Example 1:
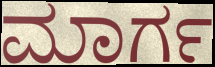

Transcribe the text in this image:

ಮಾರ್ಗ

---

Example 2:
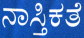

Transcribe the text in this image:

ನಾಸ್ತಿಕತೆ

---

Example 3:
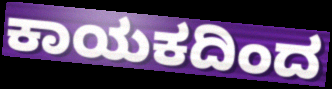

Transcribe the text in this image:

ಕಾಯಕದಿಂದ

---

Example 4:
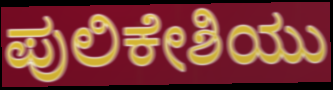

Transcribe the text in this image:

ಪುಲಿಕೇಶಿಯು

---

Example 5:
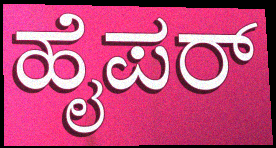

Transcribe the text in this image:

ಹೈಪರ್